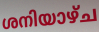
ശനിയാഴ്ച